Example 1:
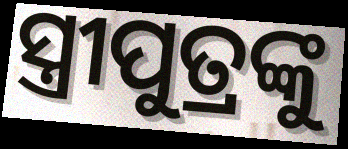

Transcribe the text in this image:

ସ୍ତ୍ରୀପୁତ୍ରଙ୍କୁ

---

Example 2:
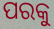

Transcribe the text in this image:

ପରକୁ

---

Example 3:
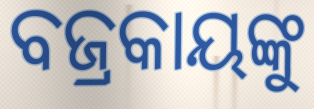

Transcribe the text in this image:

ବଜ୍ରକାୟଙ୍କୁ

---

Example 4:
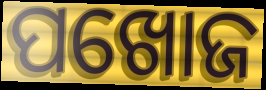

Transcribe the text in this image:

ପଖୋଜ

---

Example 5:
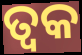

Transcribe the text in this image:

ତ୍ୱକ